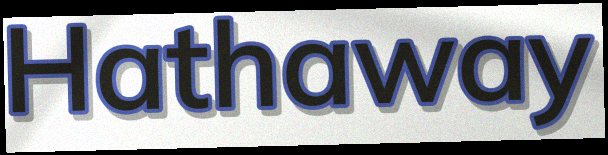
Hathaway